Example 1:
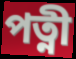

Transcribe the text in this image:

পত্নী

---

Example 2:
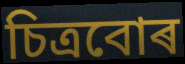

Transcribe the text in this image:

চিত্ৰবোৰ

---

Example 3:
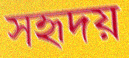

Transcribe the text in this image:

সহৃদয়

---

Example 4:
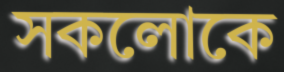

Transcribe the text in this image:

সকলোকে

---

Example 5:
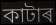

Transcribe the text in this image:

কাটাৰ